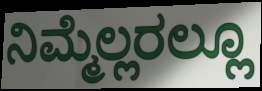
ನಿಮ್ಮೆಲ್ಲರಲ್ಲೂ